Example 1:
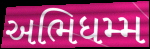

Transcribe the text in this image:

અભિધમ્મ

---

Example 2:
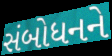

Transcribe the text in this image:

સંબોધનને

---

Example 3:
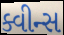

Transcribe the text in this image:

ક્વીન્સ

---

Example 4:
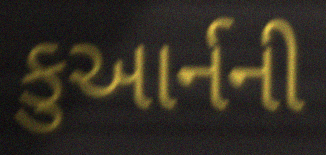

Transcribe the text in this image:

કુઆર્નની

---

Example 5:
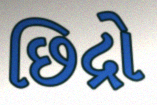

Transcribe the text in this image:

છિદ્રો